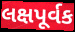
લક્ષપૂર્વક